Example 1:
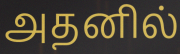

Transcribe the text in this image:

அதனில்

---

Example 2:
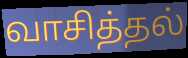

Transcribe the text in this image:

வாசித்தல்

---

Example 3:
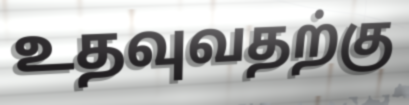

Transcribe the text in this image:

உதவுவதற்கு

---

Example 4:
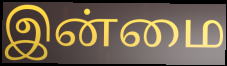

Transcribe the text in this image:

இன்மை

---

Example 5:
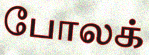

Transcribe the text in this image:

போலக்